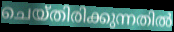
ചെയ്തിരിക്കുന്നതിൽ